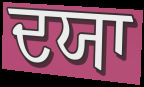
ਦਯਾ